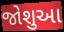
જોશુઆ